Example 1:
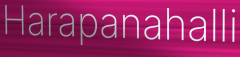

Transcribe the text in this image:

Harapanahalli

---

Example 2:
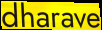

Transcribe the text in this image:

dharave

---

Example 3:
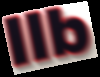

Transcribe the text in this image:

llb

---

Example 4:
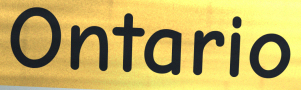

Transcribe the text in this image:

Ontario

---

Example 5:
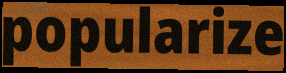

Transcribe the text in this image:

popularize